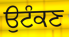
ਉਟੰਕਣ